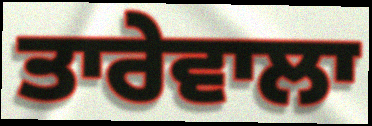
ਤਾਰੇਵਾਲਾ